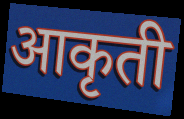
आकृती